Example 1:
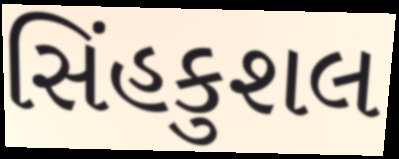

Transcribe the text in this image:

સિંહકુશલ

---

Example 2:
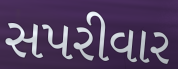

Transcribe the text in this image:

સપરીવાર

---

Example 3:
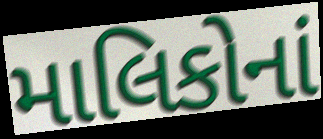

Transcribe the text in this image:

માલિકોનાં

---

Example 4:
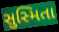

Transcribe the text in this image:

સુસ્મિતા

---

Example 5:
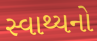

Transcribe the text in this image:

સ્વાથ્યનો